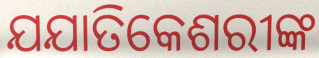
ଯଯାତିକେଶରୀଙ୍କ